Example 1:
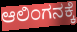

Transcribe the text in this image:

ಆಲಿಂಗನಕ್ಕೆ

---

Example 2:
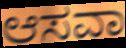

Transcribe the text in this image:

ಆಸವಾ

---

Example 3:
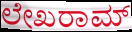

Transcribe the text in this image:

ಲೇಖರಾಮ್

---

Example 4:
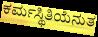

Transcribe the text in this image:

ಕರ್ಮಸ್ಥಿತಿಯೆನುತ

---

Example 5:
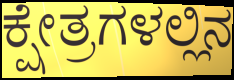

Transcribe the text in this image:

ಕ್ಷೇತ್ರಗಳಲ್ಲಿನ